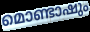
മൊണ്ടാഷും